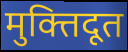
मुक्तिदूत